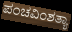
ಪಂಚವಿಂಶತ್ಯಾ